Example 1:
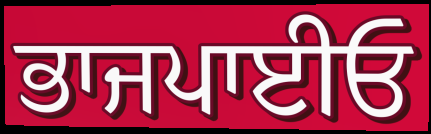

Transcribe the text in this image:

ਭਾਜਪਾਈਓ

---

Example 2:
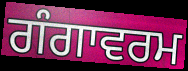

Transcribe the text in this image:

ਗੰਗਾਵਰਮ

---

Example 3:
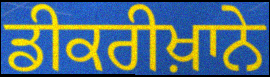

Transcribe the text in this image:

ਡੀਕਰੀਖ਼ਾਨੇ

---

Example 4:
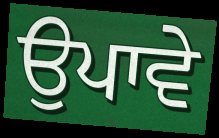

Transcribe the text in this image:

ਉਪਾਵੇ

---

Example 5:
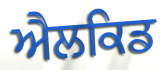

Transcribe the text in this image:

ਐਲਕਿਡ